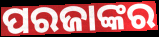
ପରଜାଙ୍କର